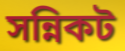
সন্নিকট